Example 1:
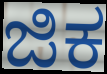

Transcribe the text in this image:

ಜಿಕ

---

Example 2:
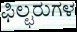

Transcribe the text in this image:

ಫಿಲ್ಟರುಗಳ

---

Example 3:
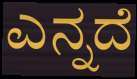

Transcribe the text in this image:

ಎನ್ನದೆ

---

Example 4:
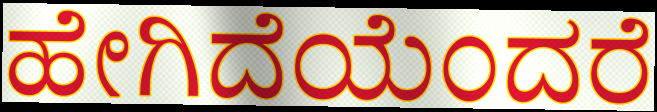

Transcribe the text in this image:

ಹೇಗಿದೆಯೆಂದರೆ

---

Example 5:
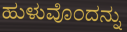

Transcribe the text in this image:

ಹುಳುವೊಂದನ್ನು